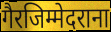
गैरजिम्मेदराना